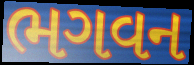
ભગવન